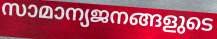
സാമാന്യജനങ്ങളുടെ